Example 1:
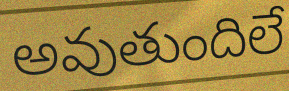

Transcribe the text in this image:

అవుతుందిలే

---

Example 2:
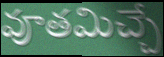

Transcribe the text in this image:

వూతమిచ్చే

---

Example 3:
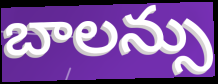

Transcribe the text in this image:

బాలన్సు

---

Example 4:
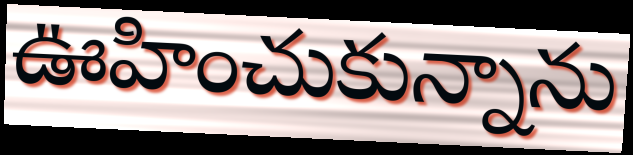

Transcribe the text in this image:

ఊహించుకున్నాను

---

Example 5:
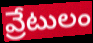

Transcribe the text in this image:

వ్రేటులం